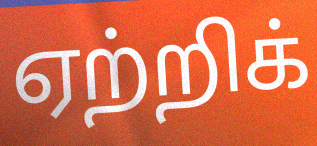
ஏற்றிக்